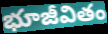
భూజీవితం